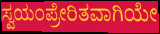
ಸ್ವಯಂಪ್ರೇರಿತವಾಗಿಯೇ